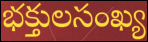
భక్తులసంఖ్య